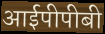
आईपीपीबी